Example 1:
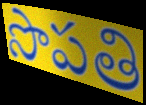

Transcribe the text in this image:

సొపతి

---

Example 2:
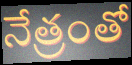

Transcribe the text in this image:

నేత్రంతో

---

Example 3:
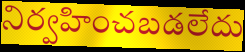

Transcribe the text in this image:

నిర్వహించబడలేదు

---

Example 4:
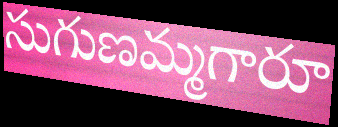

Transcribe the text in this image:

సుగుణమ్మగారూ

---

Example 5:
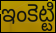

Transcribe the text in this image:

ఇంకెట్టి